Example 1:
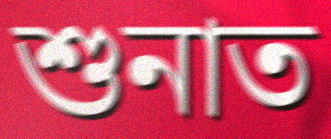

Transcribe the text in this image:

শুনাত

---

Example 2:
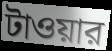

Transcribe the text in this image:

টাওয়ার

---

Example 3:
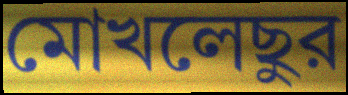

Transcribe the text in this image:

মোখলেছুর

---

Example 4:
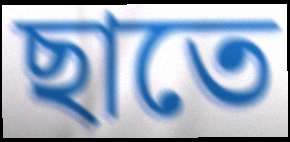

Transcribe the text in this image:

ছাতে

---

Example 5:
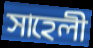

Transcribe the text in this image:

সাহেলী